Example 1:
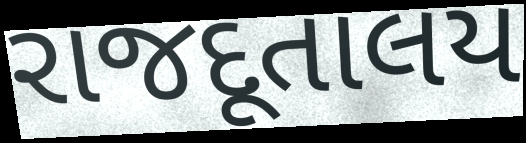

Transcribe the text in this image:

રાજદૂતાલય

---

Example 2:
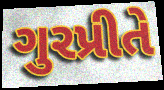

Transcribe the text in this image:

ગુરપ્રીતે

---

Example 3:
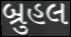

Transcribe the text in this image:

બ્રુહલ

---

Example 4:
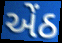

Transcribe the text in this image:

એંઠ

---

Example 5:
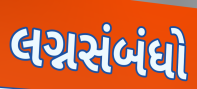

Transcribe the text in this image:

લગ્નસંબંધો